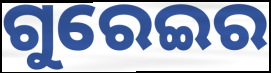
ଗୁରେଇର